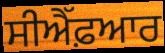
ਸੀਐੱਫ਼ਆਰ